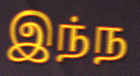
இந்ந